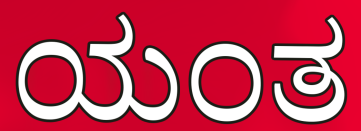
ಯಂತ